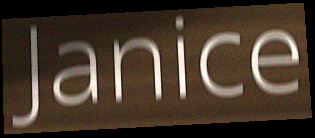
Janice